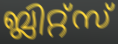
ബ്ലിറ്റ്സ്